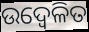
ଉଦ୍ବେଳିତ